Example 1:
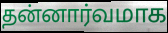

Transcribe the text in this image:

தன்னார்வமாக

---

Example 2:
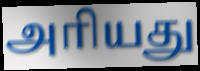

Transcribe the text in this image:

அரியது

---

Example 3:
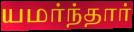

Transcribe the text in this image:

யமர்ந்தார்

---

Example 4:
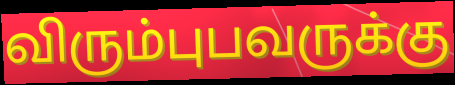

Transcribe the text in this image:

விரும்புபவருக்கு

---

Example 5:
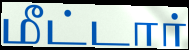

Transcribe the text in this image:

மீட்டார்